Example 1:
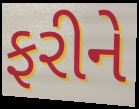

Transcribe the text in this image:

ફરીને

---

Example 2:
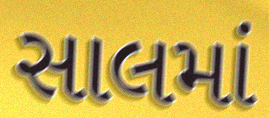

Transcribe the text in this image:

સાલમાં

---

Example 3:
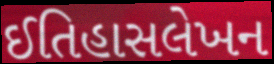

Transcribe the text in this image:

ઈતિહાસલેખન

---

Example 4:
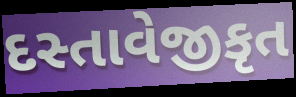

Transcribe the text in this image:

દસ્તાવેજીકૃત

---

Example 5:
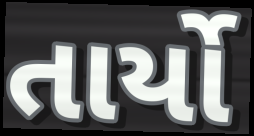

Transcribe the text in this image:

તાર્યો